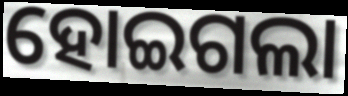
ହୋଇଗଲା